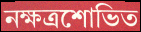
নক্ষত্রশোভিত